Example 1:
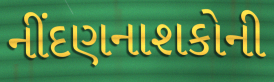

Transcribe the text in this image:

નીંદણનાશકોની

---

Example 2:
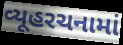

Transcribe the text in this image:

વ્યૂહરચનામાં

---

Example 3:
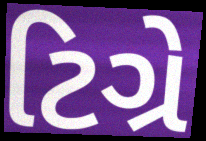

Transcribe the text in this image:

ટિગ્રે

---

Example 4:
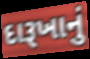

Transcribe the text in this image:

દારૂખાનું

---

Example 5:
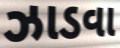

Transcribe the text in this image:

ઝાડવા